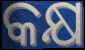
କକ୍ଷ